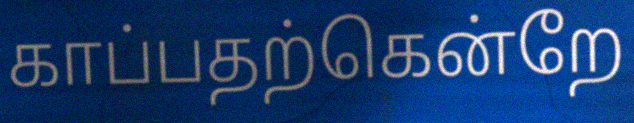
காப்பதற்கென்றே